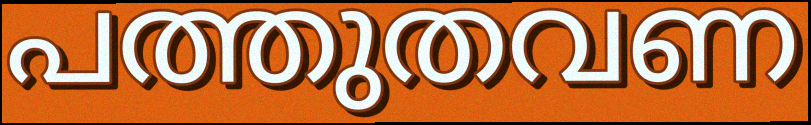
പത്തുതവണ